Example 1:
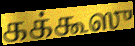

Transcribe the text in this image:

கக்கூஸு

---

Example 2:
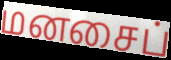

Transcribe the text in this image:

மனசைப்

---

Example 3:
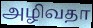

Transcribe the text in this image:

அழிவதா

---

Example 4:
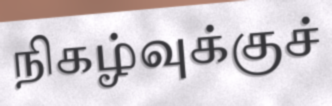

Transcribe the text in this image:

நிகழ்வுக்குச்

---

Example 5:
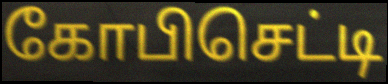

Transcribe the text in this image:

கோபிசெட்டி